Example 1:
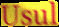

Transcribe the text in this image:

Usul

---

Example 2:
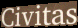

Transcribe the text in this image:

Civitas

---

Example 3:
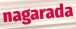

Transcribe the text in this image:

nagarada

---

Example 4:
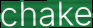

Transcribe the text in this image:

chake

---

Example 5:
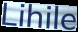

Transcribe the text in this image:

Lihile